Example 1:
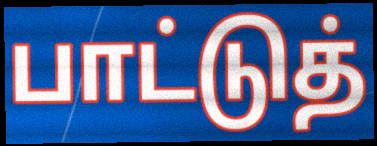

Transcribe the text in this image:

பாட்டுத்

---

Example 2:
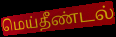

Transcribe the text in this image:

மெய்தீண்டல்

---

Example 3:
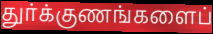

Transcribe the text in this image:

துர்க்குணங்களைப்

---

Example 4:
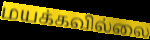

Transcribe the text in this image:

மயக்கவில்லை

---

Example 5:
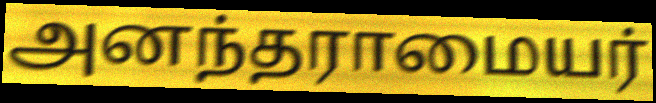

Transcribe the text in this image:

அனந்தராமையர்